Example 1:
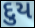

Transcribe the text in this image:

દુય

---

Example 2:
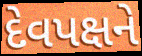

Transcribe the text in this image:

દેવપક્ષને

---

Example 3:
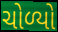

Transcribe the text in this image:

ચોળ્યો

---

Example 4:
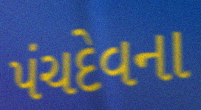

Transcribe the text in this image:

પંચદેવના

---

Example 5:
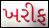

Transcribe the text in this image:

ખરીફ